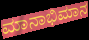
ಮಾನಾಭಿಮಾನ